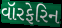
વૉરફેરિન